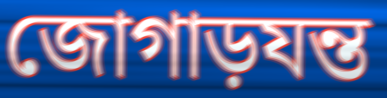
জোগাড়যন্ত